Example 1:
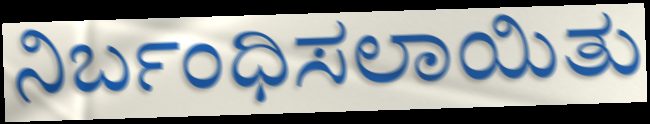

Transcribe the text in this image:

ನಿರ್ಬಂಧಿಸಲಾಯಿತು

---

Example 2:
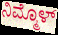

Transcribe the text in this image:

ನಿಮ್ಮೊಳ್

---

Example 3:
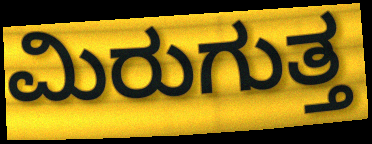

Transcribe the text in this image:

ಮಿರುಗುತ್ತ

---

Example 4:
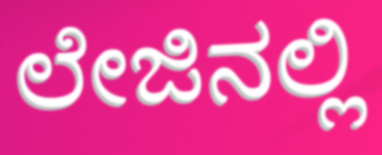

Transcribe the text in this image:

ಲೇಜಿನಲ್ಲಿ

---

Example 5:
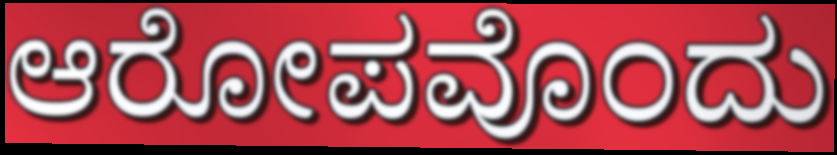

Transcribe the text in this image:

ಆರೋಪವೊಂದು